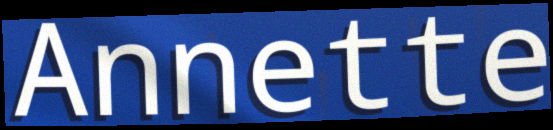
Annette